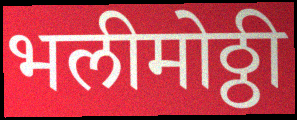
भलीमोठ्ठी